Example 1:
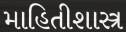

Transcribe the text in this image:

માહિતીશાસ્ત્ર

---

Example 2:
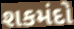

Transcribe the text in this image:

શકમંદો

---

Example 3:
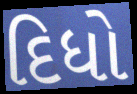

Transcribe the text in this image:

દિધો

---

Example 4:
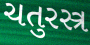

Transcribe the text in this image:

ચતુરસ્ત્ર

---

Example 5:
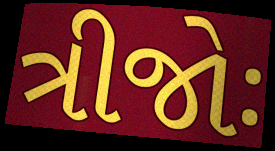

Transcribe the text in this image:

ત્રીજોઃ